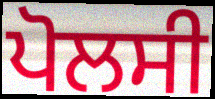
ਪੋਲਸੀ